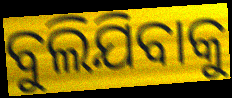
ବୁଲିଯିବାକୁ